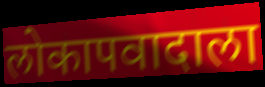
लोकापवादाला